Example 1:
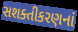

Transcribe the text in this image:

સશક્તીકરણનાં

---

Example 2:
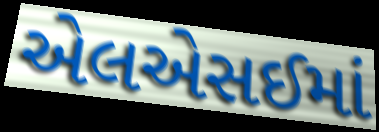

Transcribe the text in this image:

એલએસઈમાં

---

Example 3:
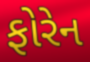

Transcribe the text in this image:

ફોરેન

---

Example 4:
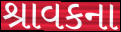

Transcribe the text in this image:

શ્રાવકના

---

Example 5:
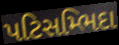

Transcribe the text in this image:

પટિસમ્ભિદા